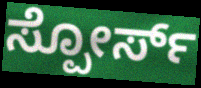
ಸ್ಪೋರ್ಸ್